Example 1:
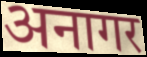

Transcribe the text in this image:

अनागर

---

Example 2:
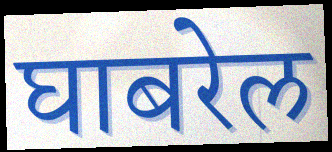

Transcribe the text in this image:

घाबरेल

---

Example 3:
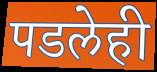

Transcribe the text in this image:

पडलेही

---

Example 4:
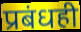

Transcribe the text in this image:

प्रबंधही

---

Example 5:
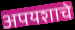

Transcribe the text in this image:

अपयशाचे